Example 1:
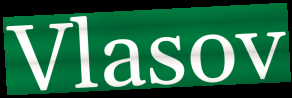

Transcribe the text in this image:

Vlasov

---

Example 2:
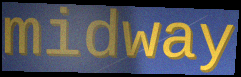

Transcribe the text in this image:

midway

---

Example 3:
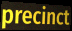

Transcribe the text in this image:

precinct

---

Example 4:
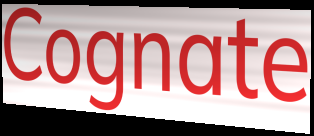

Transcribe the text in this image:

Cognate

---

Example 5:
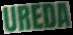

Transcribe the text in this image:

UREDA